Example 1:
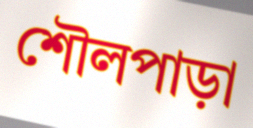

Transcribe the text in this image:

শৌলপাড়া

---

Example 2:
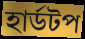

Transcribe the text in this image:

হার্ডটপ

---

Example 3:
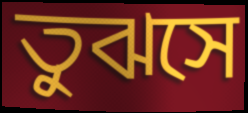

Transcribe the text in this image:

তুঝসে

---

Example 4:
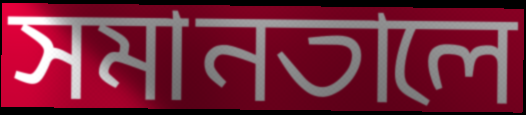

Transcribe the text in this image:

সমানতালে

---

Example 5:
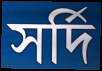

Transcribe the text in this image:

সর্দি